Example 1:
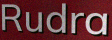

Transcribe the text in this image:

Rudra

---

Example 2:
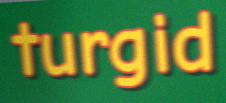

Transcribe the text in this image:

turgid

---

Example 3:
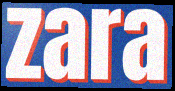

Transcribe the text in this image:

zara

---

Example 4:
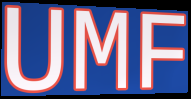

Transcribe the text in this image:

UMF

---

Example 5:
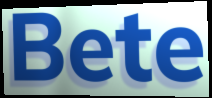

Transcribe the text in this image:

Bete